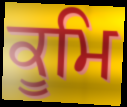
ਕੂਮਿ